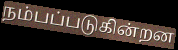
நம்பப்படுகின்றன